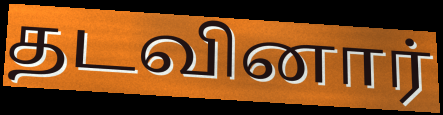
தடவினார்